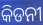
କିଡନୀ